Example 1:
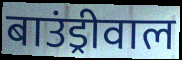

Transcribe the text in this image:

बाउंड्रीवाल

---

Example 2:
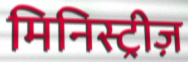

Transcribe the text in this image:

मिनिस्ट्रीज़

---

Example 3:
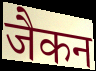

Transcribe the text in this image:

जैकन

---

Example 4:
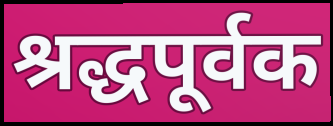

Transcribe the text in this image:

श्रद्धपूर्वक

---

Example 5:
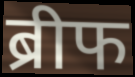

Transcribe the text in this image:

ब्रीफ